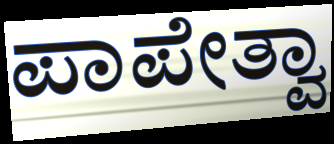
ಪಾಪೇತ್ವಾ